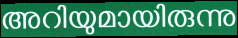
അറിയുമായിരുന്നു